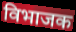
विभाजक